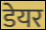
डेयर